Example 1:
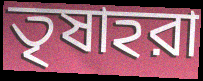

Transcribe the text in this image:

তৃষাহরা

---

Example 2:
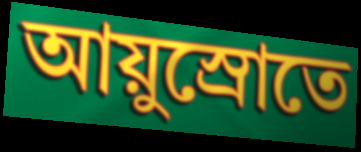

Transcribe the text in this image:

আয়ুস্রোতে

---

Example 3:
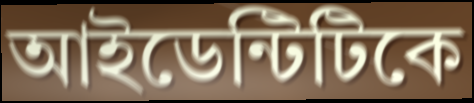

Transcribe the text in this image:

আইডেন্টিটিকে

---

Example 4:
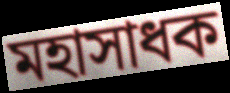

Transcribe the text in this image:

মহাসাধক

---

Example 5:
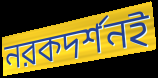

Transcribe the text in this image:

নরকদর্শনই